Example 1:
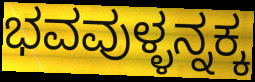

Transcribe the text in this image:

ಭವವುಳ್ಳನ್ನಕ್ಕ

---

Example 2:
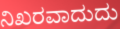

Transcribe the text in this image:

ನಿಖರವಾದುದು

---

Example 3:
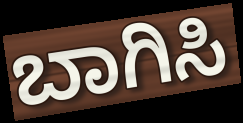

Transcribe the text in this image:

ಬಾಗಿಸಿ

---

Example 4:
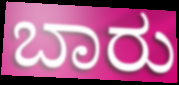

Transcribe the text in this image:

ಬಾರು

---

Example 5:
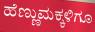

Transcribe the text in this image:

ಹೆಣ್ಣುಮಕ್ಕಳಿಗೂ